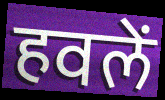
हवलें